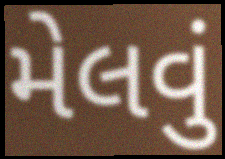
મેલવું